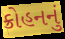
ક્રોહનનું